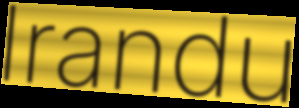
Irandu